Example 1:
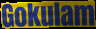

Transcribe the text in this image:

Gokulam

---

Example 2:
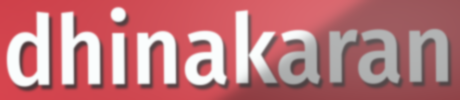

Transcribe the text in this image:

dhinakaran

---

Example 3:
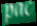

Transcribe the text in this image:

pac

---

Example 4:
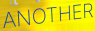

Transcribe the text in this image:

ANOTHER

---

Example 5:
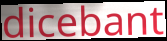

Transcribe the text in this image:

dicebant